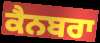
ਕੈਨਬਰਾ